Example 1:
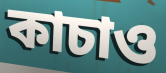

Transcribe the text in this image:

কাচাও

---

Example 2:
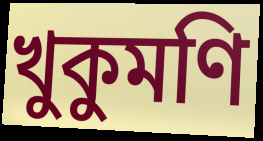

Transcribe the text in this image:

খুকুমণি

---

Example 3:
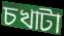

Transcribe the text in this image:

চখাটা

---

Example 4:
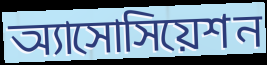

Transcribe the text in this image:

অ্যাসোসিয়েশন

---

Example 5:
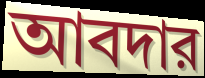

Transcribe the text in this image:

আবদার